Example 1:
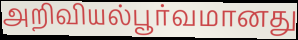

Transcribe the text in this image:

அறிவியல்பூர்வமானது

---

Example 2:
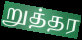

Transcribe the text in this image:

றுத்தர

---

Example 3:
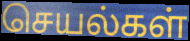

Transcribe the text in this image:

செயல்கள்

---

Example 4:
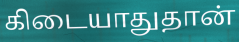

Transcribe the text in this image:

கிடையாதுதான்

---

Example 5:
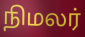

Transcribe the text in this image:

நிமலர்